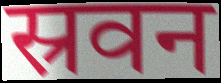
स्रवन